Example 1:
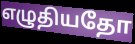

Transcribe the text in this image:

எழுதியதோ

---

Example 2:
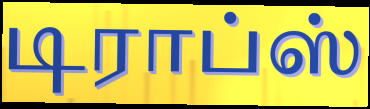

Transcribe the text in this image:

டிராப்ஸ்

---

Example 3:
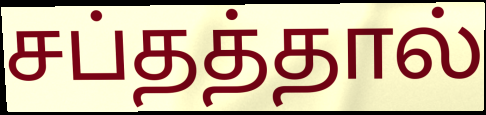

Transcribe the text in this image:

சப்தத்தால்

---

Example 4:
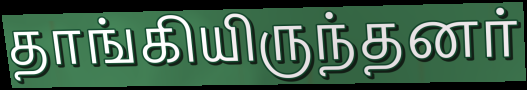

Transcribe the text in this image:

தாங்கியிருந்தனர்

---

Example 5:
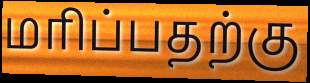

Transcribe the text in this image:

மரிப்பதற்கு